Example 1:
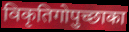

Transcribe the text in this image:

विकृतिगोपुच्छाका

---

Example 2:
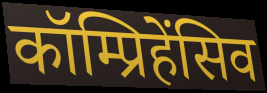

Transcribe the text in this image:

कॉम्प्रिहेंसिव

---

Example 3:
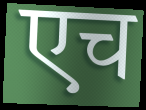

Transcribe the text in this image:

एच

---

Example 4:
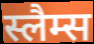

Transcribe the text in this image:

स्लैम्स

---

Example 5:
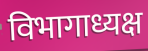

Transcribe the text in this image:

विभागाध्यक्ष